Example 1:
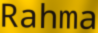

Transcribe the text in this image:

Rahma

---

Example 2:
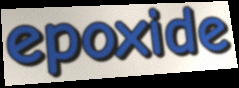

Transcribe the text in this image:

epoxide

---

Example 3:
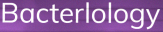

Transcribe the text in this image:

Bacterlology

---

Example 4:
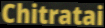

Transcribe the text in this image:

Chitratai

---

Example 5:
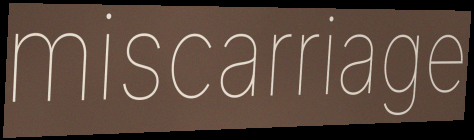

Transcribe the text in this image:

miscarriage